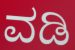
ವಡಿ